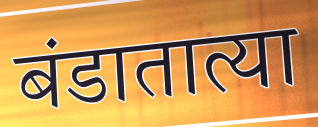
बंडातात्या